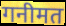
गनीमत